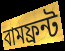
বামফ্রন্ট